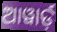
ଆୱାର୍ଡ଼